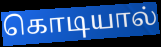
கொடியால்